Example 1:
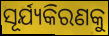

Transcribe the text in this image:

ସୂର୍ଯ୍ୟକିରଣକୁ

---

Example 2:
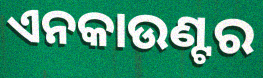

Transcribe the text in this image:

ଏନକାଉଣ୍ଟର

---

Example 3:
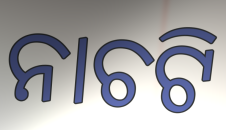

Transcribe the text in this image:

ନାଚଟି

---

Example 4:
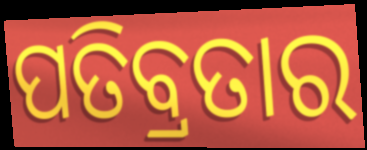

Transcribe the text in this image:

ପତିବ୍ରତାର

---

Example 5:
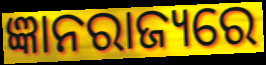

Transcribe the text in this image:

ଜ୍ଞାନରାଜ୍ୟରେ